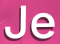
Je